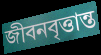
জীবনবৃত্তান্ত